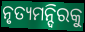
ନୃତ୍ୟମନ୍ଦିରକୁ